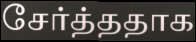
சேர்த்ததாக